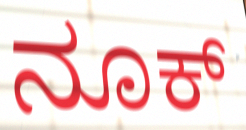
ನೂಕ್